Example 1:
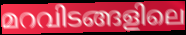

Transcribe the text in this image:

മറവിടങ്ങളിലെ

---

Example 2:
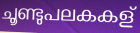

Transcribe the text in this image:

ചൂണ്ടുപലകകള്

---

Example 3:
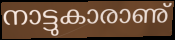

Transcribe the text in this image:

നാട്ടുകാരാണു്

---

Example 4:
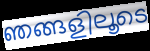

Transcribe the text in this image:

ഞങ്ങളിലൂടെ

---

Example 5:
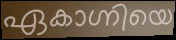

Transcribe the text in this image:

ഏകാഗ്നിയെ